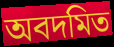
অবদমিত